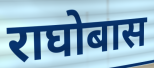
राघोबास